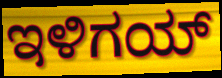
ಇಳಿಗಯ್